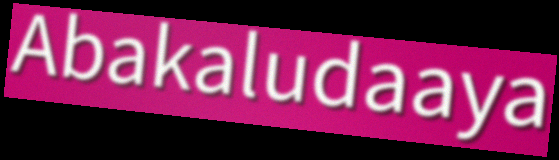
Abakaludaaya